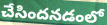
చేసిందనడంలో